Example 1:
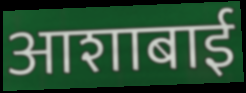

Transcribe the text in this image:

आशाबाई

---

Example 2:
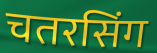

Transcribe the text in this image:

चतरसिंग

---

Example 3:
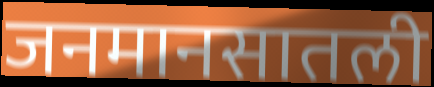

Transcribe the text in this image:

जनमानसातली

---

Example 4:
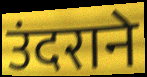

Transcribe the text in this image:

उंदराने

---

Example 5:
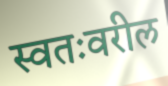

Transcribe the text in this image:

स्वतःवरील